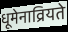
धूमेनाव्रियते